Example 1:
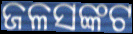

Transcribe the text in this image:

ଜଳସଙ୍କଟ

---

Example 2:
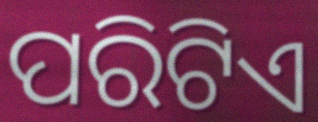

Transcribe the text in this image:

ପରିଟିଏ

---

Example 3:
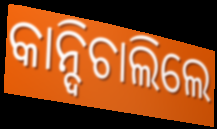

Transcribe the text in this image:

କାନ୍ଦିଚାଲିଲେ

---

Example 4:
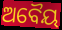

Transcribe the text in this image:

ଅବୈୟ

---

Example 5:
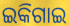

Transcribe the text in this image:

ଇକିଗାଇ